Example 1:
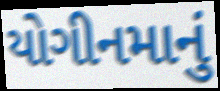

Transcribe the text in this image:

યોગીનમાનું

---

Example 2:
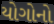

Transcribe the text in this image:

યોગોનો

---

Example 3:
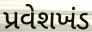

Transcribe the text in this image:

પ્રવેશખંડ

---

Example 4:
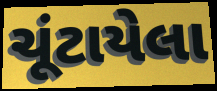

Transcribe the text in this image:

ચૂંટાયેલા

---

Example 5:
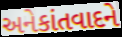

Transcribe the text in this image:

અનેકાંતવાદને